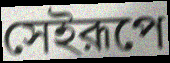
সেইরূপে